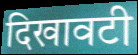
दिखावटी